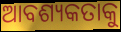
ଆବଶ୍ୟକତାକୁ